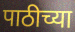
पाठीच्या